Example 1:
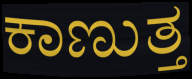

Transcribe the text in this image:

ಕಾಣುತ್ತ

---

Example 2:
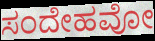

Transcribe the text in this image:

ಸಂದೇಹವೋ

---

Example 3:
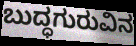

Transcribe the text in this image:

ಬುದ್ಧಗುರುವಿನ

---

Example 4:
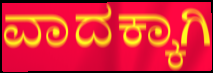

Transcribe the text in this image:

ವಾದಕ್ಕಾಗಿ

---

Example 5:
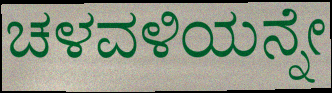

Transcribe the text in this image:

ಚಳವಳಿಯನ್ನೇ